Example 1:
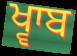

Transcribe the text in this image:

ਖ੍ਵਾਬ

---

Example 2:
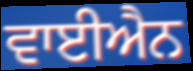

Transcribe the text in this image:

ਵਾਈਐਨ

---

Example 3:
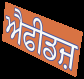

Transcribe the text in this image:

ਐਫੀਡਜ਼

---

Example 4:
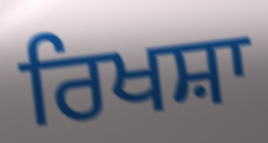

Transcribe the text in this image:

ਰਿਖਸ਼ਾ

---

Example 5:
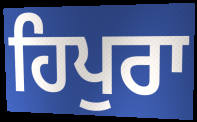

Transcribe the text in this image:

ਹਿਪੁਰਾ